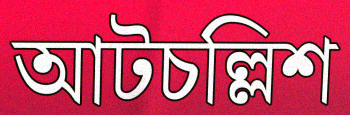
আটচল্লিশ